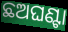
ଛଅଘଣ୍ଟା